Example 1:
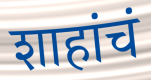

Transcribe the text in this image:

शाहांचं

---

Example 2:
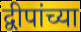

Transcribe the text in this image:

द्वीपांच्या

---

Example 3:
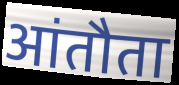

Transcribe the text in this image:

आंतौता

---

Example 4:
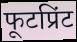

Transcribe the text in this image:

फूटप्रिंट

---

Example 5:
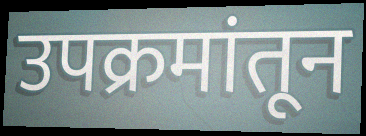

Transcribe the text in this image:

उपक्रमांतून